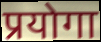
प्रयोगा